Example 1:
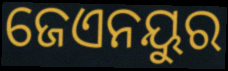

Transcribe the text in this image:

ଜେଏନୟୁର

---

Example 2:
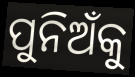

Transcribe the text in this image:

ପୁନିଅଁକୁ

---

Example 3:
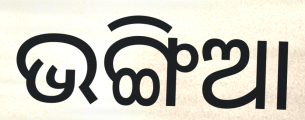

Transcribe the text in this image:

ଭଙ୍ଗିଆ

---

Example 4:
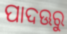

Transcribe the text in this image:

ପାଦଊରୁ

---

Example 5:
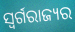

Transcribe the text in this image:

ସ୍ୱର୍ଗରାଜ୍ୟର